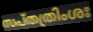
സപ്തത്രിംശഃ